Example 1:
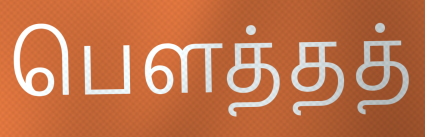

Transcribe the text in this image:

பௌத்தத்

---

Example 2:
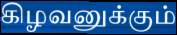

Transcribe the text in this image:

கிழவனுக்கும்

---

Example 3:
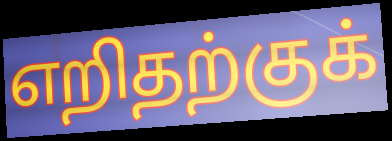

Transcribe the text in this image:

எறிதற்குக்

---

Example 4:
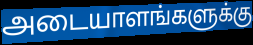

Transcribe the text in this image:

அடையாளங்களுக்கு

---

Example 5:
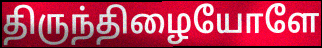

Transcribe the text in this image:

திருந்திழையோளே